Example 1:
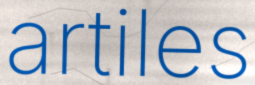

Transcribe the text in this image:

artiles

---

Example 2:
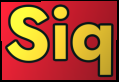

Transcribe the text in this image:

Siq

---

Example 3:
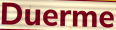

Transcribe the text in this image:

Duerme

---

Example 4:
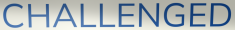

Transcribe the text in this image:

CHALLENGED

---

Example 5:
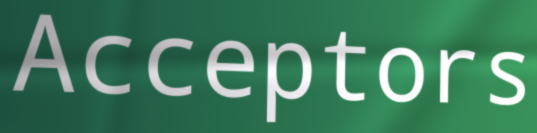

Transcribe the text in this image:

Acceptors